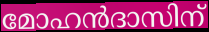
മോഹൻദാസിന്